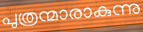
പുത്രന്മാരാകുന്നു